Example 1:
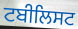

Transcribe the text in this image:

ਟਬੀਲਿਸਟ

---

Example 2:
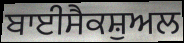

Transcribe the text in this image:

ਬਾਈਸੈਕਸ਼ੁਅਲ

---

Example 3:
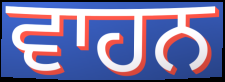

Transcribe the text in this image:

ਵਾਹਨ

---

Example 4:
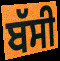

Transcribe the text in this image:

ਬੱਸੀ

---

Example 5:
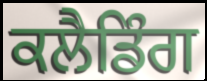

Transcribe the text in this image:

ਕਲੈਡਿੰਗ